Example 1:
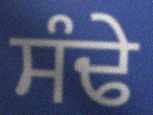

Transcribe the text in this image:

ਸੰਢੇ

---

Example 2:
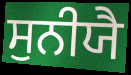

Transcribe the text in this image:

ਸੁਨੀਯੈ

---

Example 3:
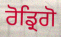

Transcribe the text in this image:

ਰੋਡ੍ਰਿਗੋ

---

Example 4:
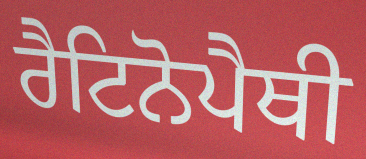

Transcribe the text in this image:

ਰੈਟਿਨੋਪੈਥੀ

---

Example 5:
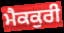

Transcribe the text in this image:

ਮੈਕਕੁਰੀ